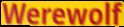
Werewolf